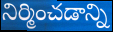
నిర్మించడాన్ని